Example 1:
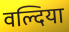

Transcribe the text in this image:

वल्दिया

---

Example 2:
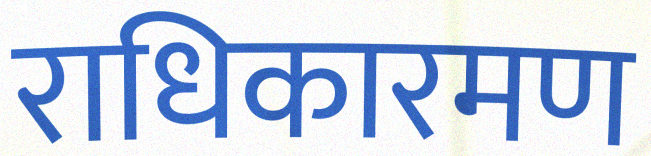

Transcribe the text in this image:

राधिकारमण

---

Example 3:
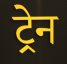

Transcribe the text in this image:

ट्रेन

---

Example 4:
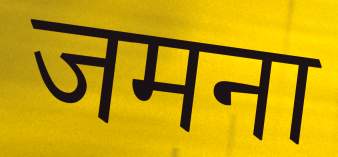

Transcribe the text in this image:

जमना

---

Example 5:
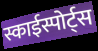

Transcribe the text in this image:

स्काईस्पोर्ट्स